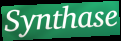
Synthase